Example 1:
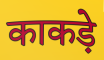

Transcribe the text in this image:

काकड़े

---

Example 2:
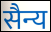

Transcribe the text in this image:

सैन्‍य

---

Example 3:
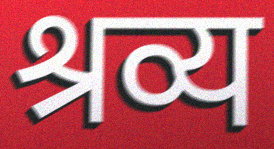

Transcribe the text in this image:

श्रव्य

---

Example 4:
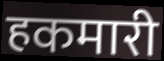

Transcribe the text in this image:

हकमारी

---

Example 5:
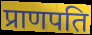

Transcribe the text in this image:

प्राणपति